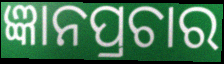
ଜ୍ଞାନପ୍ରଚାର